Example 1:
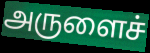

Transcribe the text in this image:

அருளைச்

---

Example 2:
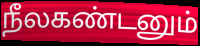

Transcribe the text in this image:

நீலகண்டனும்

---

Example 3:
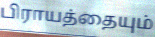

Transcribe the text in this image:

பிராயத்தையும்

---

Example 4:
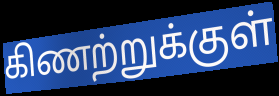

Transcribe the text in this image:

கிணற்றுக்குள்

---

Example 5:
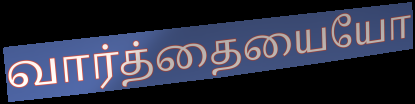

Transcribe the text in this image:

வார்த்தையையோ